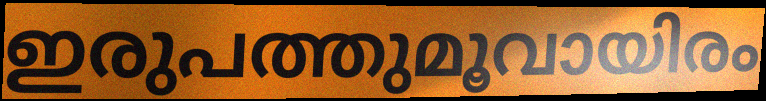
ഇരുപത്തുമൂവായിരം